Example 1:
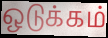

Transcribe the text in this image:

ஒடுக்கம்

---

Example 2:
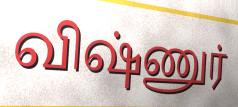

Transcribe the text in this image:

விஷ்ணுர்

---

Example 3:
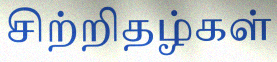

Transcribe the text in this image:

சிற்றிதழ்கள்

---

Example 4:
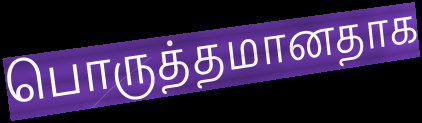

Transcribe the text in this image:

பொருத்தமானதாக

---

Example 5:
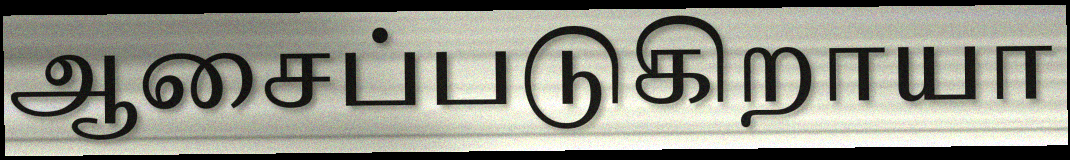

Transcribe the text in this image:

ஆசைப்படுகிறாயா